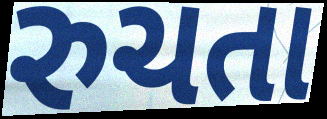
રુચતા